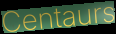
Centaurs